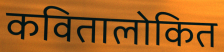
कवितालोकित